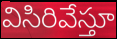
విసిరివేస్తూ